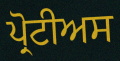
ਪ੍ਰੋਟੀਅਸ